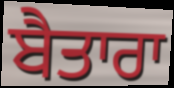
ਬੈਤਾਰਾ